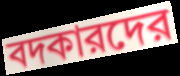
বদকারদের